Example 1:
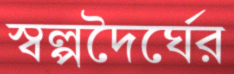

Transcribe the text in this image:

স্বল্পদৈর্ঘের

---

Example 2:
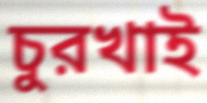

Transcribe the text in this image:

চুরখাই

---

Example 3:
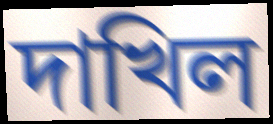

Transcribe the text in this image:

দাখিল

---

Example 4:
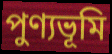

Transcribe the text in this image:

পুণ্যভূমি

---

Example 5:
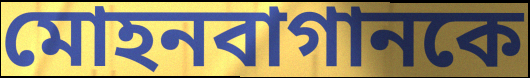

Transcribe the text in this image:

মোহনবাগানকে